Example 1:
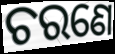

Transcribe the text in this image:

ଚରଣେ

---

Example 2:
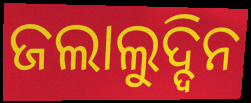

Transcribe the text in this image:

ଜଲାଲୁଦ୍ଦିନ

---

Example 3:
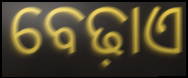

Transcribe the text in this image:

ବେଢ଼ାଏ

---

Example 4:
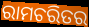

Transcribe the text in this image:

ରାମଚରିତର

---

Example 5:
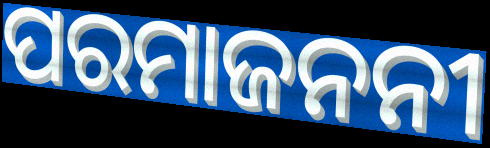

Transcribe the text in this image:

ପରମାଜନନୀ